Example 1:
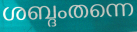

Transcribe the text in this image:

ശബ്ദംതന്നെ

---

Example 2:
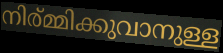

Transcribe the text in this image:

നിര്മ്മിക്കുവാനുള്ള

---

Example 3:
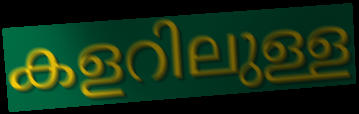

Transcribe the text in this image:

കളറിലുള്ള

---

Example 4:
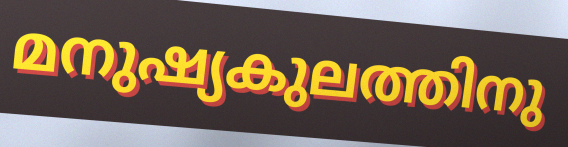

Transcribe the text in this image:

മനുഷ്യകുലത്തിനു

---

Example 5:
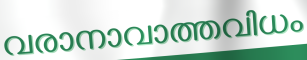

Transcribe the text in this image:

വരാനാവാത്തവിധം